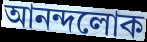
আনন্দলোক